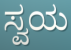
ಸ್ವಯ